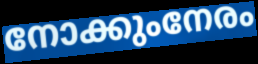
നോക്കുംനേരം